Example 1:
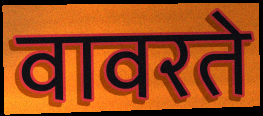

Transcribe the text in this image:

वावरते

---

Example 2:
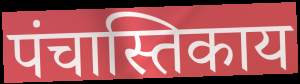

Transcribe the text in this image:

पंचास्तिकाय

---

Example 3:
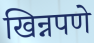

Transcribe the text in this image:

खिन्नपणे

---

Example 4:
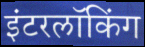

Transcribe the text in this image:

इंटरलॉकिंग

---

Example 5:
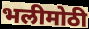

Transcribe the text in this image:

भलीमोठी